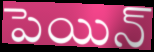
పెయిన్